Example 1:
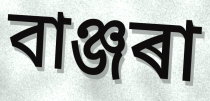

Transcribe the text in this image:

বাঞ্জৰা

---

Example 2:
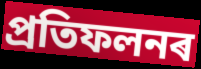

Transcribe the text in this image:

প্ৰতিফলনৰ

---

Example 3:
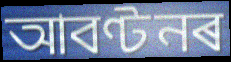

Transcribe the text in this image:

আবণ্টনৰ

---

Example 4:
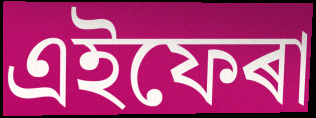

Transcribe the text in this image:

এইফেৰা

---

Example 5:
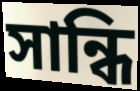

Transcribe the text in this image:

সান্ধি